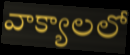
వాక్యాలలో